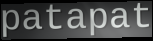
patapat